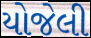
યોજેલી